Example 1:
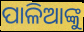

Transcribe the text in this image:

ପାଳିଆଙ୍କୁ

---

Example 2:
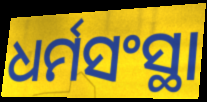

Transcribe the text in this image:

ଧର୍ମସଂସ୍ଥା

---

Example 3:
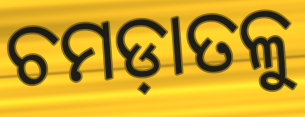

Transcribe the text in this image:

ଚମଡ଼ାତଳୁ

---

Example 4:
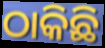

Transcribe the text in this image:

ଠାକିଛି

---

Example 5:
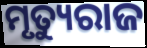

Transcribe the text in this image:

ମୃତ୍ୟୁରାଜ